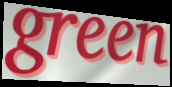
green